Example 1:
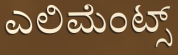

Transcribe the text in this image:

ಎಲಿಮೆಂಟ್ಸ್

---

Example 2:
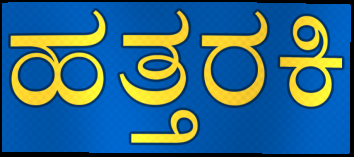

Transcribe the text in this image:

ಹತ್ತರಕಿ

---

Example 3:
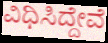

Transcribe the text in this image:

ವಿಧಿಸಿದ್ದೇವೆ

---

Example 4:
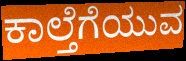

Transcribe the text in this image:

ಕಾಲ್ತೆಗೆಯುವ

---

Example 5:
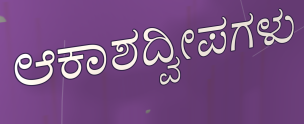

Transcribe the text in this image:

ಆಕಾಶದ್ವೀಪಗಳು